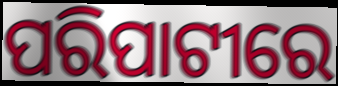
ପରିପାଟୀରେ